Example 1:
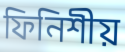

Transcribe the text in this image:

ফিনিশীয়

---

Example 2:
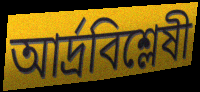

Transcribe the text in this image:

আর্দ্রবিশ্লেষী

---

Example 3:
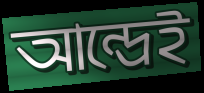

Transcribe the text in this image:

আন্দ্রেই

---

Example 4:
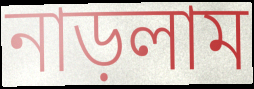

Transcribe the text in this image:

নাড়লাম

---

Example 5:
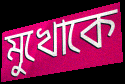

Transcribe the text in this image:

মুখোকে